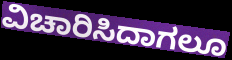
ವಿಚಾರಿಸಿದಾಗಲೂ